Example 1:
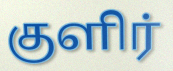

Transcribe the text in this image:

குளிர்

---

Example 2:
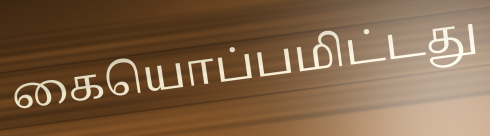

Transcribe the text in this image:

கையொப்பமிட்டது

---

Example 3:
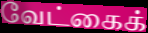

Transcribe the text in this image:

வேட்கைக்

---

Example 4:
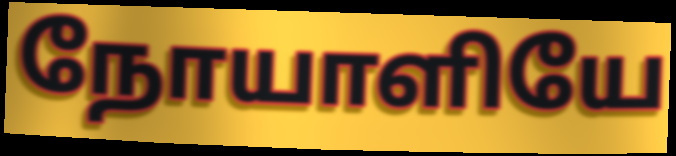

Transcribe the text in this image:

நோயாளியே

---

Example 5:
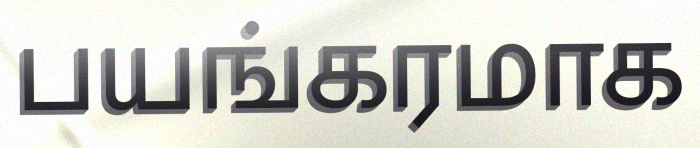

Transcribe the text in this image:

பயங்கரமாக